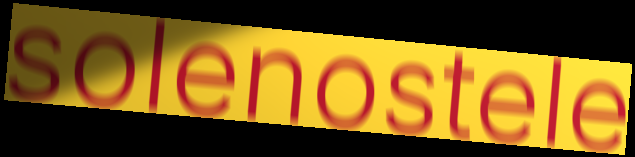
solenostele